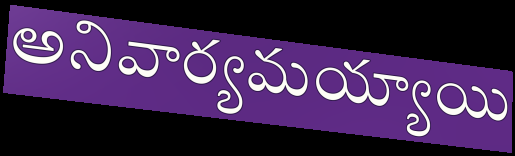
అనివార్యమయ్యాయి